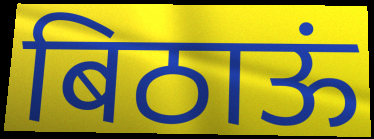
बिठाऊं